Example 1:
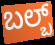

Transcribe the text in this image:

ಬಲ್ಬ್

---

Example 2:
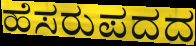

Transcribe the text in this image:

ಹೆಸರುಪದದ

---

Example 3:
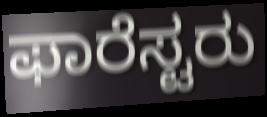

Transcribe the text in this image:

ಫಾರೆಸ್ಟರು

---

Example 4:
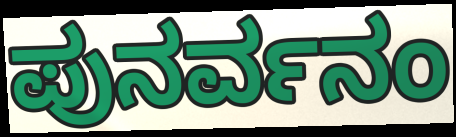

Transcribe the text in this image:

ಪುನರ್ವನಂ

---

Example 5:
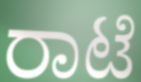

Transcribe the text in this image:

ರಾಟೆ